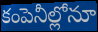
కంపెనీల్లోనూ